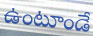
ఉంటూండే